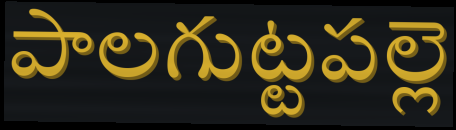
పాలగుట్టపల్లె